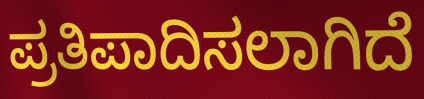
ಪ್ರತಿಪಾದಿಸಲಾಗಿದೆ